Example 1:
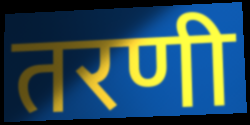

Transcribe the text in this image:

तरणी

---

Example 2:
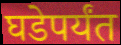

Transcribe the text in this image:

घडेपर्यंत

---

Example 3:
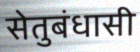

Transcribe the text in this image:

सेतुबंधासी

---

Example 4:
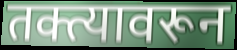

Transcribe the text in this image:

तक्त्यावरून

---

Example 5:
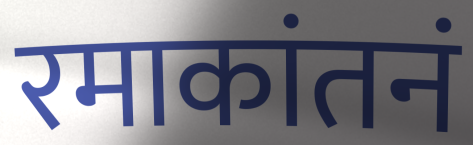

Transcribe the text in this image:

रमाकांतनं